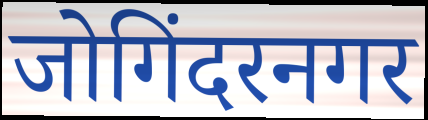
जोगिंदरनगर